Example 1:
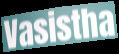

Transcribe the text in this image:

Vasistha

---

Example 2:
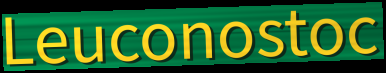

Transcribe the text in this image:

Leuconostoc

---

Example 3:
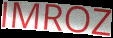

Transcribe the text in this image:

IMROZ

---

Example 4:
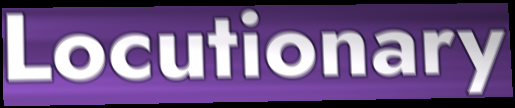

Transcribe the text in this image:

Locutionary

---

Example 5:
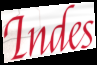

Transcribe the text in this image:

Indes